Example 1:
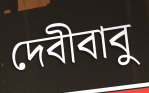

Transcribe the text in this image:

দেবীবাবু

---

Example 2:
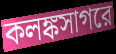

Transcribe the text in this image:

কলঙ্কসাগরে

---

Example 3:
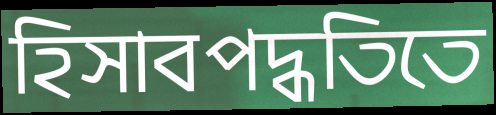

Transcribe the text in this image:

হিসাবপদ্ধতিতে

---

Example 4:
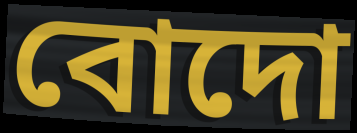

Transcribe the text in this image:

বোদো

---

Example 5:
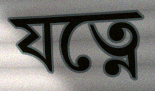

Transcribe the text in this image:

যত্নে